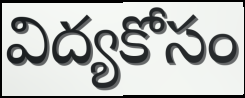
విద్యకోసం